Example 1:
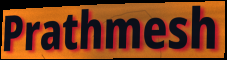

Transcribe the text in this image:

Prathmesh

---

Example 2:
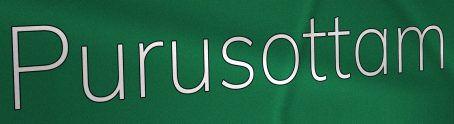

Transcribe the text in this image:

Purusottam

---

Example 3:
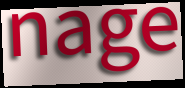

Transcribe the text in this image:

nage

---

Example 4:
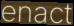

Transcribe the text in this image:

enact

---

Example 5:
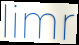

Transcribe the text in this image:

limr